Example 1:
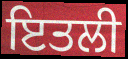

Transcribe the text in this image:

ਇਤਲੀ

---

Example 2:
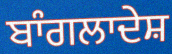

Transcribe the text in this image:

ਬਾੰਗਲਾਦੇਸ਼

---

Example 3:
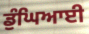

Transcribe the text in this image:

ਡੁੰਘਿਆਈ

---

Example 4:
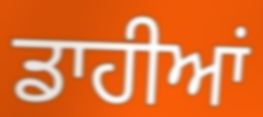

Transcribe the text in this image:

ਡਾਹੀਆਂ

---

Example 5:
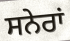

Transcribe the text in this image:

ਸਨੇਰਾਂ